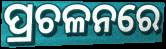
ପ୍ରଚଳନରେ